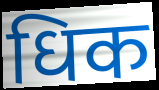
धिक